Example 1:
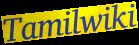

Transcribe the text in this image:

Tamilwiki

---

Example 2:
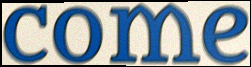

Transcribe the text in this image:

come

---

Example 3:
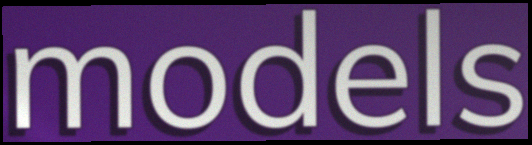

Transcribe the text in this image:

models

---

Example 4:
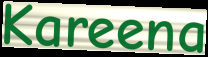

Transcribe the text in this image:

Kareena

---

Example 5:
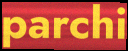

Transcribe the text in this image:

parchi